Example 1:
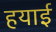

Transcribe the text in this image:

हयाई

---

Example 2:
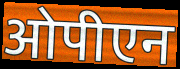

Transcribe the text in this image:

ओपीएन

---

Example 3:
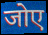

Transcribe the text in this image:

जोए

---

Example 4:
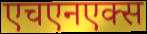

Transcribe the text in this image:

एचएनएक्स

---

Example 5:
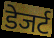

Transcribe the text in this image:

डेजर्ट